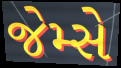
જેમ્સે